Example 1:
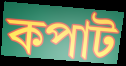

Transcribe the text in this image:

কপাট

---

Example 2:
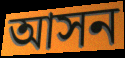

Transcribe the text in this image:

আসন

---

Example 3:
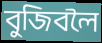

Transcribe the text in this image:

বুজিবলৈ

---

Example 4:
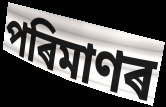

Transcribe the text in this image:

পৰিমাণৰ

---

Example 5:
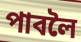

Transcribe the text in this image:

পাবলৈ